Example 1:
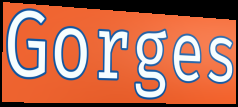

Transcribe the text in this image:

Gorges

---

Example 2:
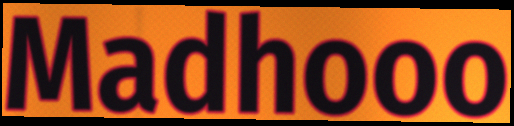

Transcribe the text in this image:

Madhooo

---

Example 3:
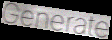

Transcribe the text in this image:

Generate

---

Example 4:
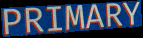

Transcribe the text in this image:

PRIMARY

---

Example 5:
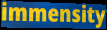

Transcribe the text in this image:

immensity